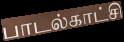
பாடல்காட்சி